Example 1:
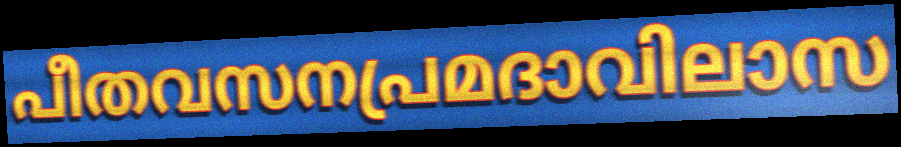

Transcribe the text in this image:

പീതവസനപ്രമദാവിലാസ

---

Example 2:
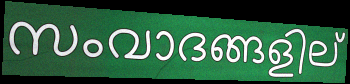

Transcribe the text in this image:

സംവാദങ്ങളില്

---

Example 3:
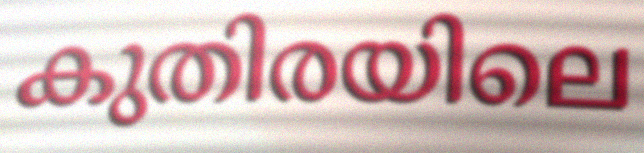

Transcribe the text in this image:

കുതിരയിലെ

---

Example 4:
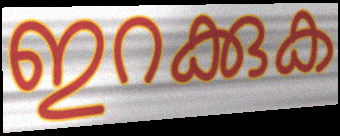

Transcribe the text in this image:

ഇറക്കുക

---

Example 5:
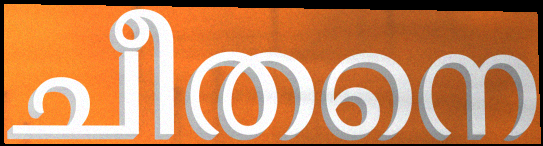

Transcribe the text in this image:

ചീതനെ